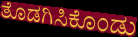
ತೊಡಗಿಸಿಕೊಂಡು